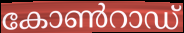
കോൺറാഡ്